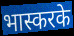
भास्करके